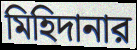
মিহিদানার